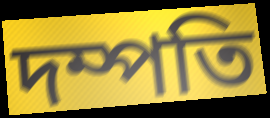
দম্পতি